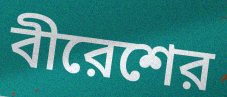
বীরেশের